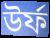
উৰ্ফ